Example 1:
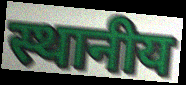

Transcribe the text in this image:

स्थानीय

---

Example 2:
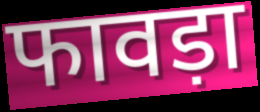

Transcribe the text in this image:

फावड़ा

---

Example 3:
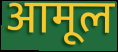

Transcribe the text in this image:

आमूल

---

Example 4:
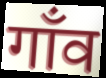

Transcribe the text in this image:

गाँव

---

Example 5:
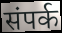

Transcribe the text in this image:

संपर्क